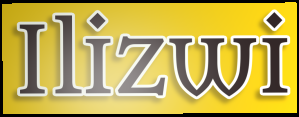
Ilizwi